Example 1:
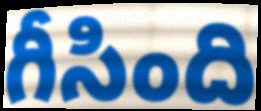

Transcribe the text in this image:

గీసింది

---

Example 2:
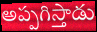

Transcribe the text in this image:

అప్పగిస్తాడు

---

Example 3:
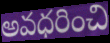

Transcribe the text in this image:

అవధరించి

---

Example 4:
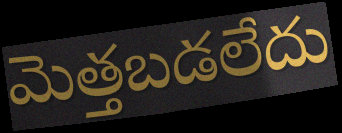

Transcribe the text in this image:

మెత్తబడలేదు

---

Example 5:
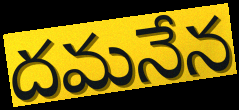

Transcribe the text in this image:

దమనేన